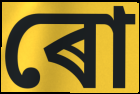
ৰো